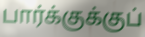
பார்க்குக்குப்